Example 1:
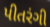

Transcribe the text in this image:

પીતરંગી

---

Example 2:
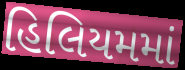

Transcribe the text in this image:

હિલિયમમાં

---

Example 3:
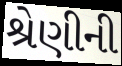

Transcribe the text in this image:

શ્રેણીની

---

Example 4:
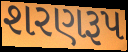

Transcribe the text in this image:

શરણરૂપ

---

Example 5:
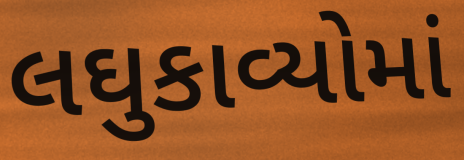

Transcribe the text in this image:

લઘુકાવ્યોમાં